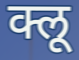
क्लू